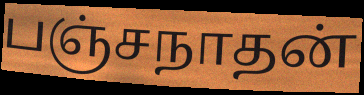
பஞ்சநாதன்